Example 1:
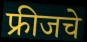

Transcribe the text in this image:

फ्रीजचे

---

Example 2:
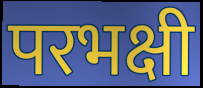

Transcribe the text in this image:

परभक्षी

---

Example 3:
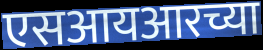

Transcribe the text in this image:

एसआयआरच्या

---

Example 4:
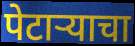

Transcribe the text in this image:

पेटाऱ्याचा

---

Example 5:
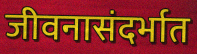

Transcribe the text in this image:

जीवनासंदर्भात